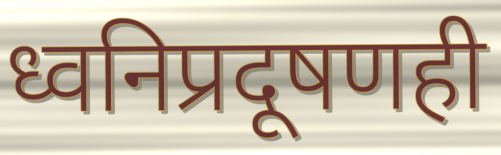
ध्वनिप्रदूषणही